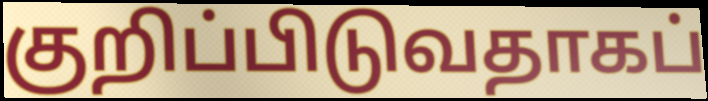
குறிப்பிடுவதாகப்